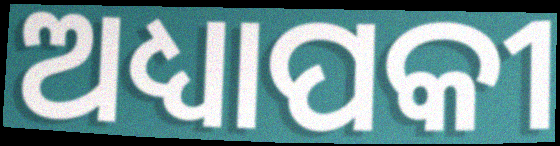
ଅଧ୍ୟାପକୀ